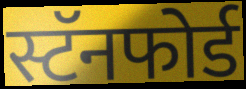
स्टॅनफोर्ड